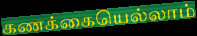
கணக்கையெல்லாம்